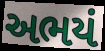
અભયં